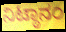
ನಿಟ್ಠಾನಂ